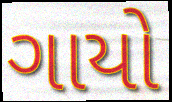
ગાયો